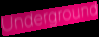
Underground